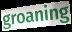
groaning